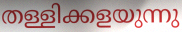
തള്ളിക്കളയുന്നു